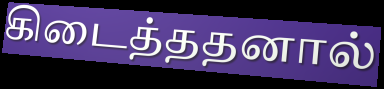
கிடைத்ததனால்